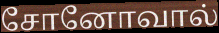
சோனோவால்